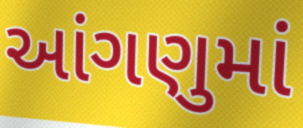
આંગણુમાં